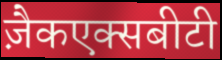
ज़ैकएक्सबीटी